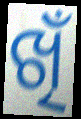
ଖିଁ